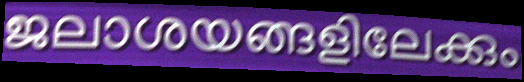
ജലാശയങ്ങളിലേക്കും